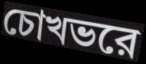
চোখভরে